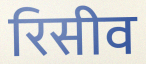
रिसीव